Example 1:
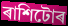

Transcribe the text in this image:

ৰাশিটোৰ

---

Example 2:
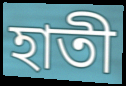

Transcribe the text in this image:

হাতী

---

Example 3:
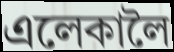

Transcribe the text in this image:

এলেকালৈ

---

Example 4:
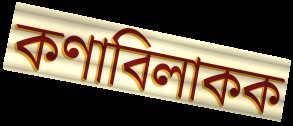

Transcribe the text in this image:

কণাবিলাকক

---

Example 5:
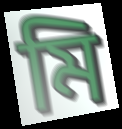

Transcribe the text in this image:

মি